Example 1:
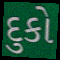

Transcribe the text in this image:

દુકો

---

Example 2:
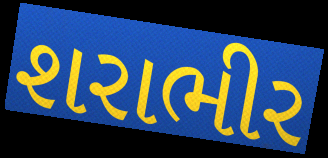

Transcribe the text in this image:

શરાભીર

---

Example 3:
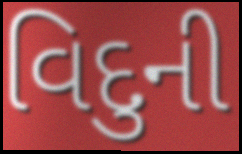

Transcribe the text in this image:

વિદુની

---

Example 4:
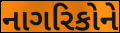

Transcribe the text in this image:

નાગરિકોને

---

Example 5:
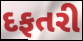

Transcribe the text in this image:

દફતરી